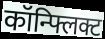
कॉन्फ्लिक्ट